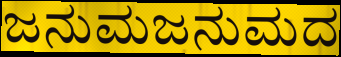
ಜನುಮಜನುಮದ